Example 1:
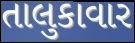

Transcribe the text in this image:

તાલુકાવાર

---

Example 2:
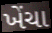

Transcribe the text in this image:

ખેંચા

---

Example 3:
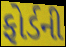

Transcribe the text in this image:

ફોર્ડની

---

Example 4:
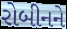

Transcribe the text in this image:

રોબીનને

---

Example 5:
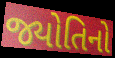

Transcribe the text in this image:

જ્યોતિનો